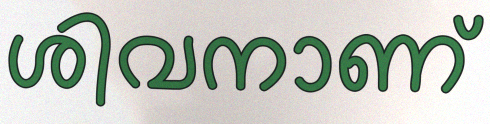
ശിവനാണ്